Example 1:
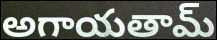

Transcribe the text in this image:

అగాయతామ్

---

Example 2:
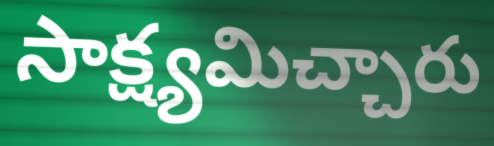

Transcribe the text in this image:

సాక్ష్యమిచ్చారు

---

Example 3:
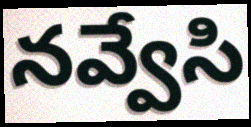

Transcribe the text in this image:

నవ్వేసి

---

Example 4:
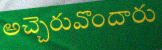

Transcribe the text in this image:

అచ్చెరువొందారు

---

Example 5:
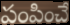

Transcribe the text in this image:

పంపించే